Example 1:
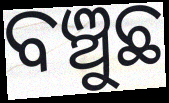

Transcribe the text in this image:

ବଞ୍ଚୁଛ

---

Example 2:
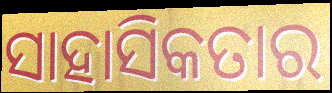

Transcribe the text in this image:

ସାହାସିକତାର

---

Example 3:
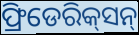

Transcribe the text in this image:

ଫ୍ରିଡେରିକ୍‌ସନ୍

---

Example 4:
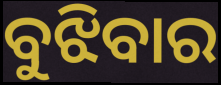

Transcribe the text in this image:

ବୁଝିବାର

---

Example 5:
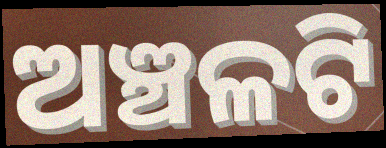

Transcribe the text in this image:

ଅଞ୍ଚଳଟି